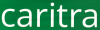
caritra